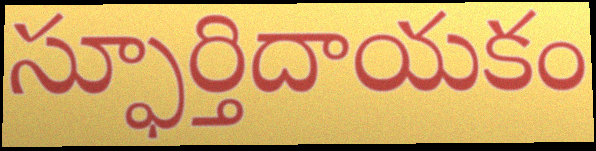
స్ఫూర్తిదాయకం